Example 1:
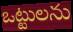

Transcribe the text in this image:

ఒట్టులను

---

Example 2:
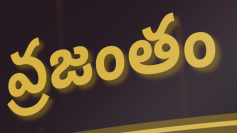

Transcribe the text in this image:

వ్రజంతం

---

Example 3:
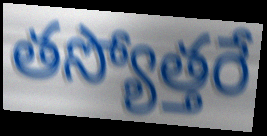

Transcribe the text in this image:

తస్యోత్తరే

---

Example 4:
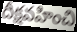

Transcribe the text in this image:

దీక్షవహించి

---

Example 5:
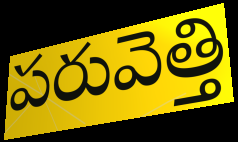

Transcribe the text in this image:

పరువెత్తి